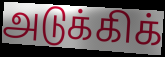
அடுக்கிக்